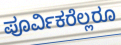
ಪೂರ್ವಿಕರೆಲ್ಲರೂ